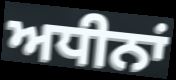
ਅਧੀਨਾਂ